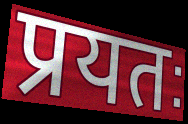
प्रयतः